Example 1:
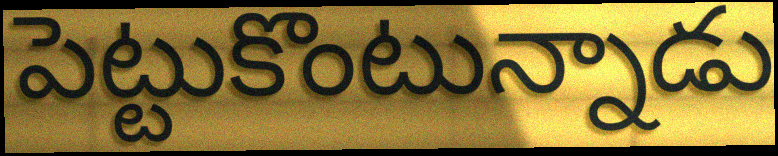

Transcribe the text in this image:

పెట్టుకొంటున్నాడు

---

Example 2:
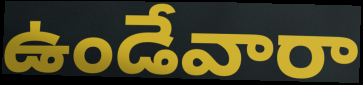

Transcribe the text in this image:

ఉండేవారా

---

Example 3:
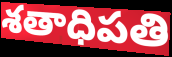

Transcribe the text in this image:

శతాధిపతి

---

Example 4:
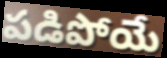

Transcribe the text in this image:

పడిపోయే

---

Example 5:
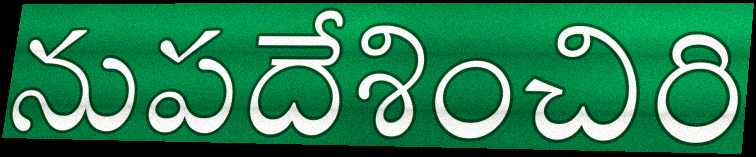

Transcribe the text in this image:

నుపదేశించిరి